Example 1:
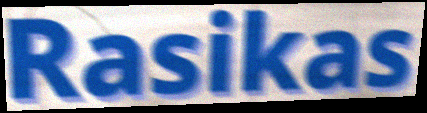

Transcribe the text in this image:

Rasikas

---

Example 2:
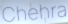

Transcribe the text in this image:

Chehra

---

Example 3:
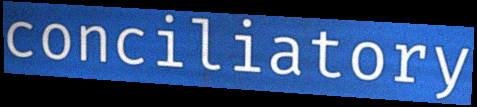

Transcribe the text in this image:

conciliatory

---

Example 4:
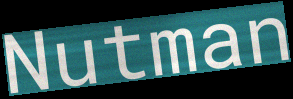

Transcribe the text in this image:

Nutman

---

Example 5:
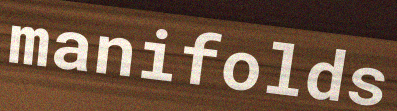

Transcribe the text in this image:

manifolds